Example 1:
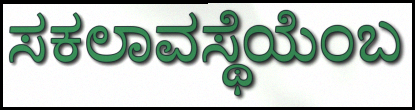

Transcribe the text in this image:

ಸಕಲಾವಸ್ಥೆಯೆಂಬ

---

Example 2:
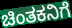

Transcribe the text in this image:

ಚಿಂತಕನಿಗೆ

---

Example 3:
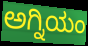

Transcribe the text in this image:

ಅಗ್ನಿಯಂ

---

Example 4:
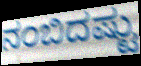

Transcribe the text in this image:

ನಂಬಿದಷ್ಟು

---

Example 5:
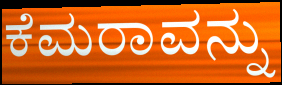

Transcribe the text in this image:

ಕೆಮರಾವನ್ನು